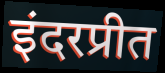
इंदरप्रीत